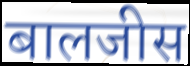
बालजीस